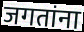
जगतांना